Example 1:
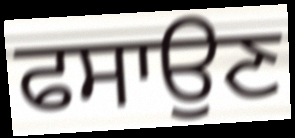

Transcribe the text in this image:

ਫਸਾਉਣ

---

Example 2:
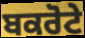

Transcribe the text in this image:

ਬਕਰੋਟੇ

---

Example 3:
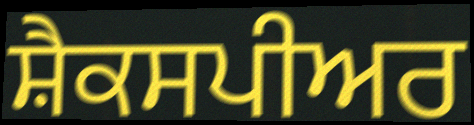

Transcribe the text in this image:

ਸ਼ੈਕਸਪੀਅਰ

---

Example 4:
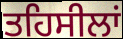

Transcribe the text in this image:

ਤਹਿਸੀਲਾਂ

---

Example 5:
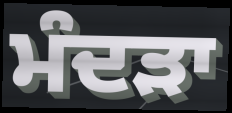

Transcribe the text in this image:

ਮੰਦੜਾ